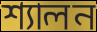
শ্যালন